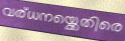
വര്ധനയ്ക്കെതിരെ